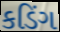
કડિંગ